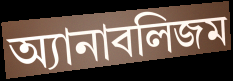
অ্যানাবলিজম